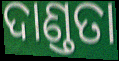
ଦାଣ୍ଡତା